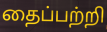
தைப்பற்றி